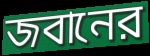
জবানের